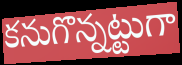
కనుగొన్నట్టుగా